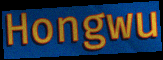
Hongwu